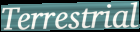
Terrestrial